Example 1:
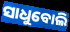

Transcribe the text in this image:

ସାଧୁବୋଲି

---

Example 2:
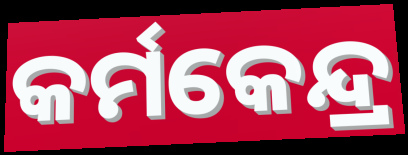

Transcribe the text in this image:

କର୍ମକେନ୍ଦ୍ର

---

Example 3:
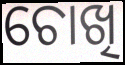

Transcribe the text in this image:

ଚୋଖି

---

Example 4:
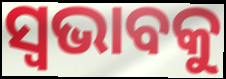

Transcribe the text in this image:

ସ୍ୱଭାବକୁ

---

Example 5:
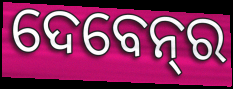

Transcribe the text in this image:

ଦେବେନ୍‌ର